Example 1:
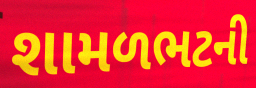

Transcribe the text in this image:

શામળભટની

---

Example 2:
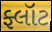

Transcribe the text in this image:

ફ્લૉટ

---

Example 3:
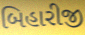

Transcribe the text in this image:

બિહારીજી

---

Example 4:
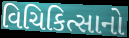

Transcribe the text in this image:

વિચિકિત્સાનો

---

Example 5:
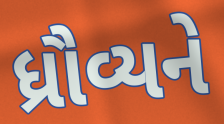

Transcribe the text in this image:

ધ્રૌવ્યને